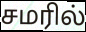
சமரில்